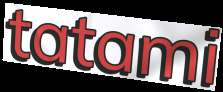
tatami